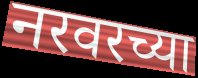
नरवरच्या